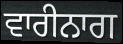
ਵਾਰੀਨਾਗ